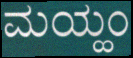
ಮಯ್ಹಂ